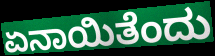
ಏನಾಯಿತೆಂದು